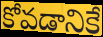
కోవడానికే